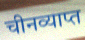
चीनव्याप्त